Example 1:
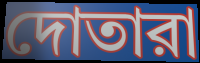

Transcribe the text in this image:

দোতারা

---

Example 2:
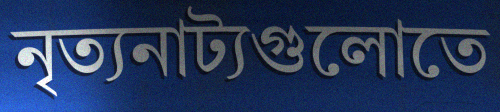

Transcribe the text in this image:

নৃত্যনাট্যগুলোতে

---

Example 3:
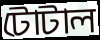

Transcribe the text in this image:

টোটাল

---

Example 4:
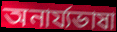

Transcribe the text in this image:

অনার্য্যভাষা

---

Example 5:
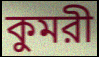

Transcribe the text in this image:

কুমরী